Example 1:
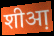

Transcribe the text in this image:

शीआ़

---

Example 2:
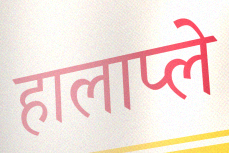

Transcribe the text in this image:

हालाप्ले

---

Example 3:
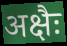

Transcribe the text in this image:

अक्षैः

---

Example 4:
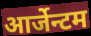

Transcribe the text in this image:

आर्जेन्टम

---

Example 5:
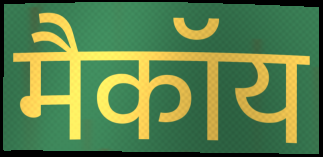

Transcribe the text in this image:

मैकॉय